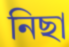
নিছা